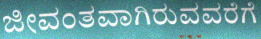
ಜೀವಂತವಾಗಿರುವವರೆಗೆ